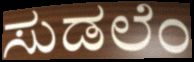
ಸುಡಲೆಂ